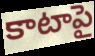
కాటాపై